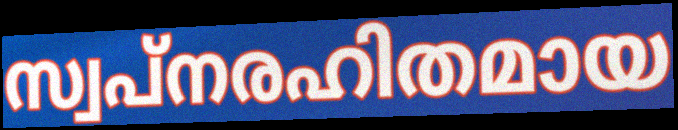
സ്വപ്നരഹിതമായ